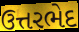
ઉત્તરભેદ